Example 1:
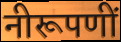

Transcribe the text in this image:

नीरूपणीं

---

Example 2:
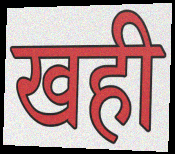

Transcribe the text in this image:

खही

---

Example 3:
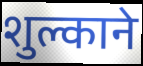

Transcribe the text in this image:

शुल्काने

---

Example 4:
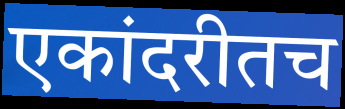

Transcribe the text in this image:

एकांदरीतच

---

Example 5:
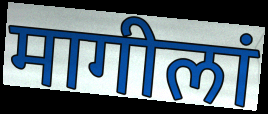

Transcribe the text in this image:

मागीलां